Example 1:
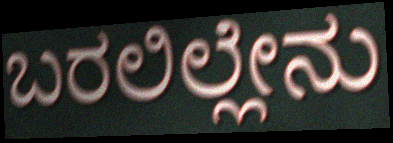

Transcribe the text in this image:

ಬರಲಿಲ್ಲೇನು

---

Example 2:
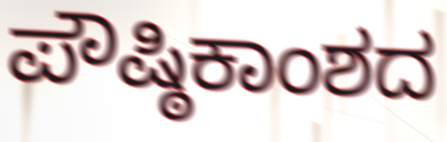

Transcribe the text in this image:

ಪೌಷ್ಠಿಕಾಂಶದ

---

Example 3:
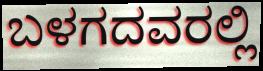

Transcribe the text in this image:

ಬಳಗದವರಲ್ಲಿ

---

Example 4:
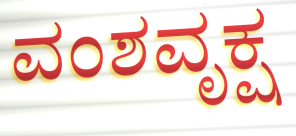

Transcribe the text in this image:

ವಂಶವೃಕ್ಷ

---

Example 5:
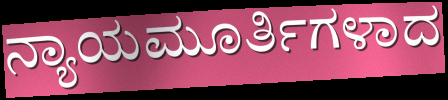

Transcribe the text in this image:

ನ್ಯಾಯಮೂರ್ತಿಗಳಾದ